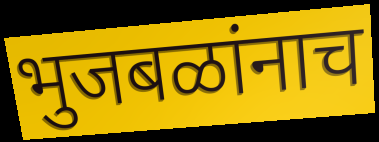
भुजबळांनाच